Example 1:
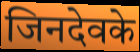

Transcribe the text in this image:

जिनदेवके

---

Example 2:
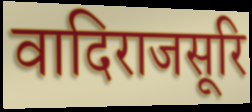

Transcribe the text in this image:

वादिराजसूरि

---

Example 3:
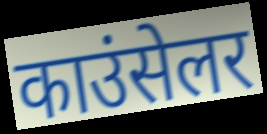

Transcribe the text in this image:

काउंसेलर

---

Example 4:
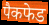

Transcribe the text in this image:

पैकफेड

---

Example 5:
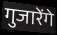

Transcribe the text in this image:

गुजारेंगे